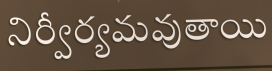
నిర్వీర్యమవుతాయి